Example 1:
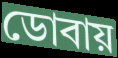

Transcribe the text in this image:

ডোবায়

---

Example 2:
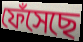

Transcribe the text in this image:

ফেঁসেছে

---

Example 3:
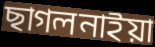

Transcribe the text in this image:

ছাগলনাইয়া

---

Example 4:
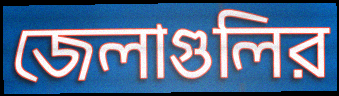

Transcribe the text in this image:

জেলাগুলির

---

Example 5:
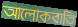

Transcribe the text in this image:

আলোকবাতি